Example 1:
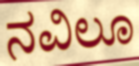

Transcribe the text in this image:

ನವಿಲೂ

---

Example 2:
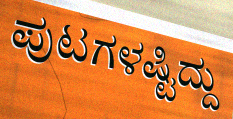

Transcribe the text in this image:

ಪುಟಗಳಷ್ಟಿದ್ದು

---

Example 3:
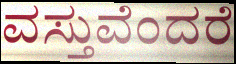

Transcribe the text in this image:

ವಸ್ತುವೆಂದರೆ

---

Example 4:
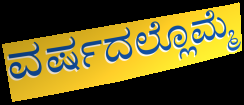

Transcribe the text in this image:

ವರ್ಷದಲ್ಲೊಮ್ಮೆ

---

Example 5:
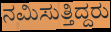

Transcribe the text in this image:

ನಮಿಸುತ್ತಿದ್ದರು